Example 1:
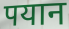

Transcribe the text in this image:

पयान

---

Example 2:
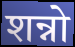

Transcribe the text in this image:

शन्नो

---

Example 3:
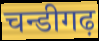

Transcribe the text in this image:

चन्डीगढ़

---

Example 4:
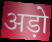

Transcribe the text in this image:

अड़ो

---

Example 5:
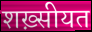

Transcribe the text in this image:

शख़्सीयत